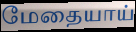
மேதையாய்